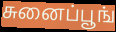
சுனைப்பூங்